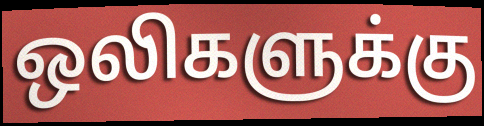
ஒலிகளுக்கு